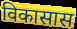
विकासास